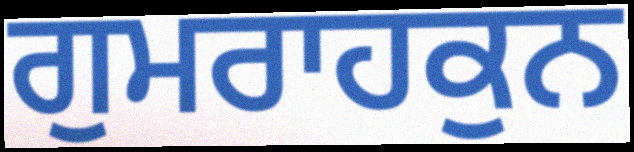
ਗੁਮਰਾਹਕੁਨ